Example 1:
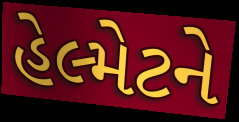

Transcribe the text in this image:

હેલ્મેટને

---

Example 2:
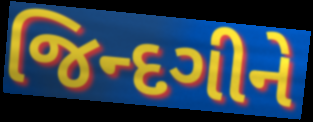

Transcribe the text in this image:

જિન્દગીને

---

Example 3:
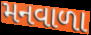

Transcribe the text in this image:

મનવાળા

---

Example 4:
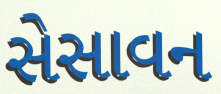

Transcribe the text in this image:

સેસાવન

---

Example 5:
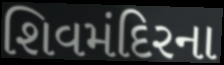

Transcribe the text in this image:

શિવમંદિરના